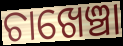
ଚାଖେଞ୍ଚା